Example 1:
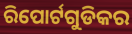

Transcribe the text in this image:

ରିପୋର୍ଟଗୁଡିକର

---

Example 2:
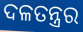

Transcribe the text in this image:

ଦଳତନ୍ତ୍ରର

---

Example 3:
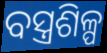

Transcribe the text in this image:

ବସ୍ତ୍ରଶିଳ୍ପ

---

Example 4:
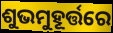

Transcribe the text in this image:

ଶୁଭମୁହୂର୍ତ୍ତରେ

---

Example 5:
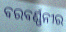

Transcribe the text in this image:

ବରବର୍ଣ୍ଣନୀର